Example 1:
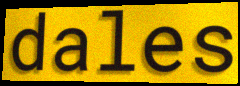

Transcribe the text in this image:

dales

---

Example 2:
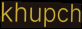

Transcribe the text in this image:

khupch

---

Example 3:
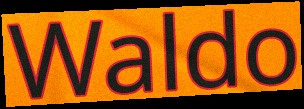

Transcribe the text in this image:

Waldo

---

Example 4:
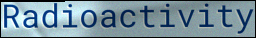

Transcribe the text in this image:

Radioactivity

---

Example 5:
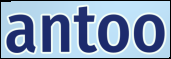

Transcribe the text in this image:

antoo